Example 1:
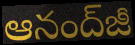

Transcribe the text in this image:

ఆనంద్‌జీ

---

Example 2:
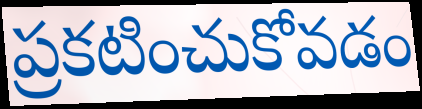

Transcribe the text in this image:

ప్రకటించుకోవడం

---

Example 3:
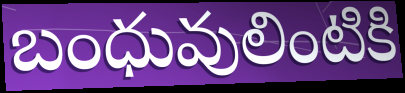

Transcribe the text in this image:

బంధువులింటికి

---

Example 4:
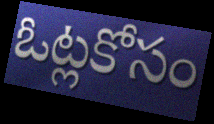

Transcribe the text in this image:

ఓట్లకోసం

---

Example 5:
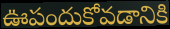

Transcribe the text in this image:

ఊపందుకోవడానికి